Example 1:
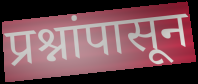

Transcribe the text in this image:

प्रश्नांपासून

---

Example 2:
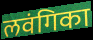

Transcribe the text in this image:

लवंगिका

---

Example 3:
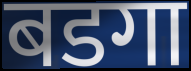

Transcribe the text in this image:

बडगा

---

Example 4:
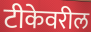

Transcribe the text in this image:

टीकेवरील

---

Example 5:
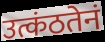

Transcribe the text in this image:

उत्कंठतेनं